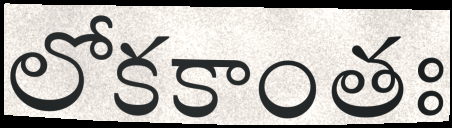
లోకకాంతః